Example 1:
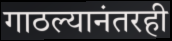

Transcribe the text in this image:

गाठल्यानंतरही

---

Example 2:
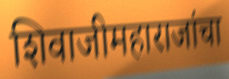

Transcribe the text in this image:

शिवाजीमहाराजांचा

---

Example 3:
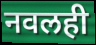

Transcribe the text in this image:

नवलही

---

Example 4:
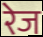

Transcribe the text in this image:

रेज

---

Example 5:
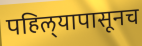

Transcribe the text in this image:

पहिल्यापासूनच